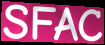
SFAC